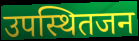
उपस्थितजन